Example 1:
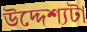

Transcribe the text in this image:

উদ্দেশ্যটা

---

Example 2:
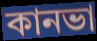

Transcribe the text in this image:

কানভা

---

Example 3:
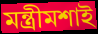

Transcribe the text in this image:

মন্ত্রীমশাই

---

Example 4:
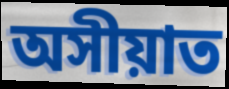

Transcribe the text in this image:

অসীয়াত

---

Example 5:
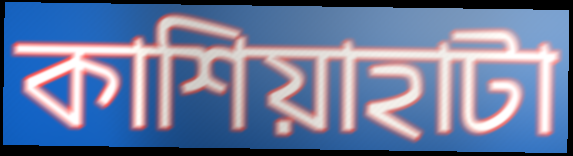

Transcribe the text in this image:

কাশিয়াহাটা